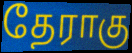
தேராகு